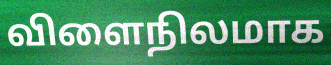
விளைநிலமாக